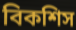
বিকশিস